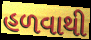
હળવાથી